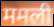
ममली